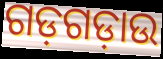
ଗଡ଼ଗଡ଼ାଉ